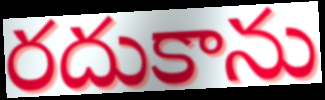
రదుకాను